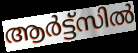
ആർട്ട്സിൽ